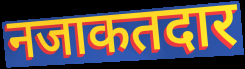
नजाकतदार